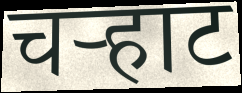
चऱ्हाट